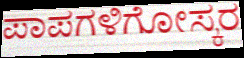
ಪಾಪಗಳಿಗೋಸ್ಕರ